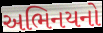
અભિનયનો